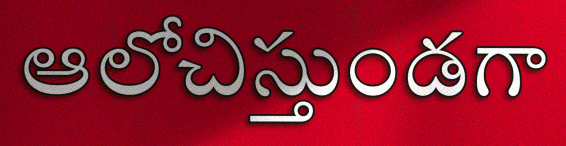
ఆలోచిస్తుండగా